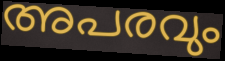
അപരവും